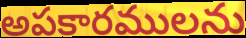
అపకారములను